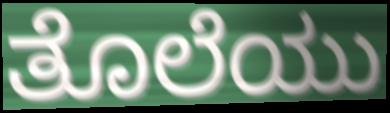
ತೊಲೆಯು